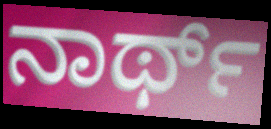
ನಾರ್ಥ್